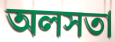
অলসতা